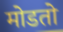
मोडतो